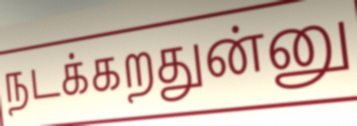
நடக்கறதுன்னு